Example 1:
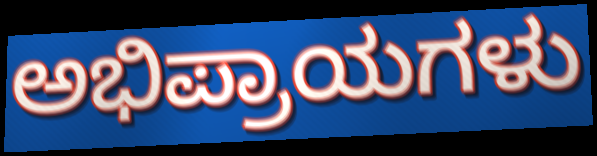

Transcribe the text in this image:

ಅಭಿಪ್ರಾಯಗಳು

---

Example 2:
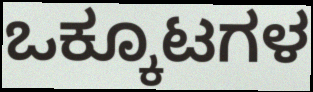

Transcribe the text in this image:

ಒಕ್ಕೂಟಗಳ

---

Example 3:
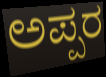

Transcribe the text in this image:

ಅಪ್ಪರ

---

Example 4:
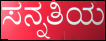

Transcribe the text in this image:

ಸನ್ನತಿಯ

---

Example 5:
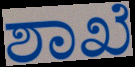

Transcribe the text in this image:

ಶಾಖೆ